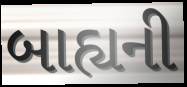
બાહ્યની